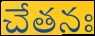
చేతనః